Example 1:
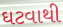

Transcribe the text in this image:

ઘટવાથી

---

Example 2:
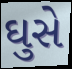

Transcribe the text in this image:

ઘુસે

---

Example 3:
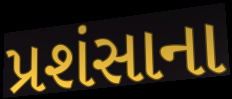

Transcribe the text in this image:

પ્રશંસાના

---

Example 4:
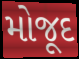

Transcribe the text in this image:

મોજૂદ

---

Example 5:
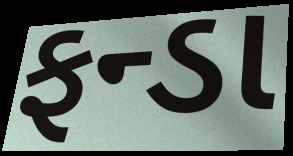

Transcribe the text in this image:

ફન્ડા